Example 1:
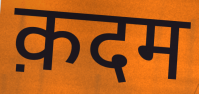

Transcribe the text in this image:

क़दम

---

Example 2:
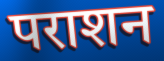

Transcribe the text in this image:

पराशन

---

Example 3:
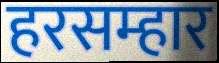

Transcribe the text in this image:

हरसम्हार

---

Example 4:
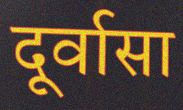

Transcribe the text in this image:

दूर्वासा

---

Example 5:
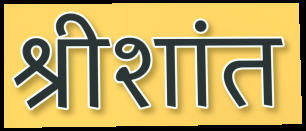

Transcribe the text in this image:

श्रीशांत